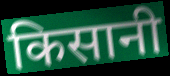
किसानी